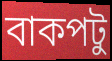
বাকপটু